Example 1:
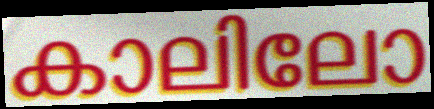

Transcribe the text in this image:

കാലിലോ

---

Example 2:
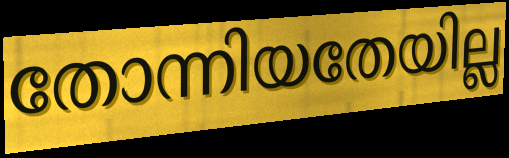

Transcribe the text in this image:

തോന്നിയതേയില്ല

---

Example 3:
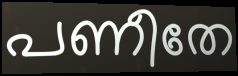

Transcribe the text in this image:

പണീതേ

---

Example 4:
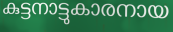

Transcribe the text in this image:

കുട്ടനാട്ടുകാരനായ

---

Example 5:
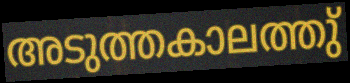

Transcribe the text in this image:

അടുത്തകാലത്തു്